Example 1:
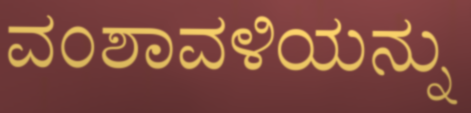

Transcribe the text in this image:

ವಂಶಾವಳಿಯನ್ನು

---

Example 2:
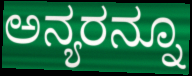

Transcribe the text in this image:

ಅನ್ಯರನ್ನೂ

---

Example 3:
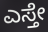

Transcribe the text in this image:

ಎಸ್ತೇ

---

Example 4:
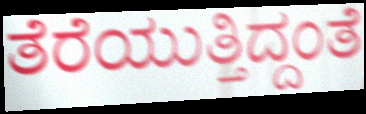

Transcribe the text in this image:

ತೆರೆಯುತ್ತಿದ್ದಂತೆ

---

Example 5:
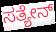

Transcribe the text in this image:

ಸತ್ಯೇನ್